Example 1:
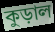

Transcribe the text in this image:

কুড়াল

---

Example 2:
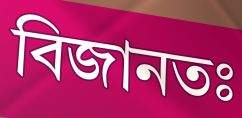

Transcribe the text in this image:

বিজানতঃ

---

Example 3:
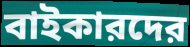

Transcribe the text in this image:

বাইকারদের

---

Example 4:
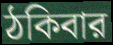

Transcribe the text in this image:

ঠকিবার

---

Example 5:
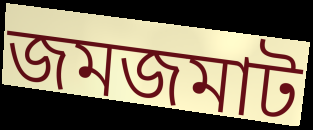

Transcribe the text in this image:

জমজমাট